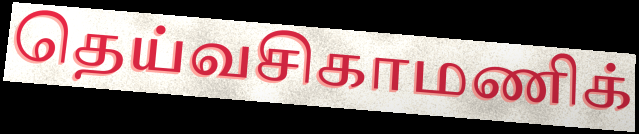
தெய்வசிகாமணிக்